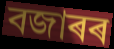
বজাৰৰ